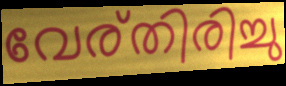
വേര്തിരിച്ചു